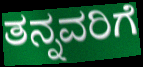
ತನ್ನವರಿಗೆ